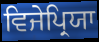
ਵਿਜੇਪ੍ਰਿਯਾ